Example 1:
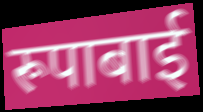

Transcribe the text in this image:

रूपाबाई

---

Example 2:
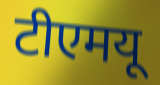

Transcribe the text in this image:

टीएमयू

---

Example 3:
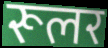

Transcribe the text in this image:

रूलर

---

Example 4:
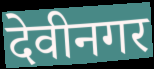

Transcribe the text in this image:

देवीनगर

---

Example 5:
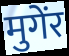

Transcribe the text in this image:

मुगेंर